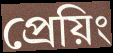
প্রেয়িং